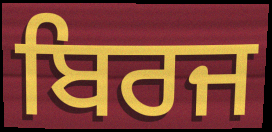
ਬਿਰਜ